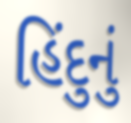
હિંદુનું